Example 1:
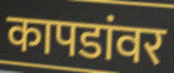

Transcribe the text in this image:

कापडांवर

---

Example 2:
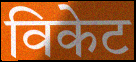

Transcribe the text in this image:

विकेट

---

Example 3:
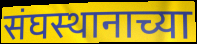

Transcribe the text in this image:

संघस्थानाच्या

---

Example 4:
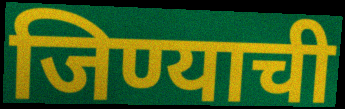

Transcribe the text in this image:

जिण्याची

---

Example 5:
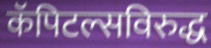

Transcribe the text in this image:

कॅपिटल्सविरुद्ध